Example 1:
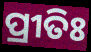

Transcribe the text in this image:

ପ୍ରୀତିଃ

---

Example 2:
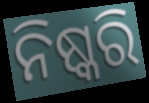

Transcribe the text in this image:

ନିଷ୍କରି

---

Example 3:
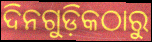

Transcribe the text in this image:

ଦିନଗୁଡ଼ିକଠାରୁ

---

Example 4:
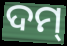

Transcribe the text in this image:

ଦମ୍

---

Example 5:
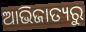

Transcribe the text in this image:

ଆଭିଜାତ୍ୟରୁ